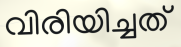
വിരിയിച്ചത്